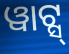
ୱାଟ୍ସ୍